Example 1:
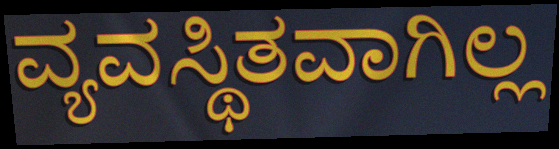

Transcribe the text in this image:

ವ್ಯವಸ್ಥಿತವಾಗಿಲ್ಲ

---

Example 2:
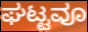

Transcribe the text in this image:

ಘಟ್ಟವೂ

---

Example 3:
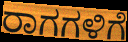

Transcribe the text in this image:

ರಾಗಗಳಿಗೆ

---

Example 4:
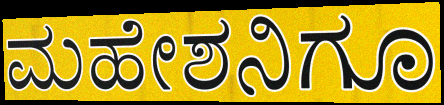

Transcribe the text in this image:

ಮಹೇಶನಿಗೂ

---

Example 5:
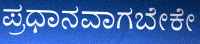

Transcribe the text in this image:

ಪ್ರಧಾನವಾಗಬೇಕೇ